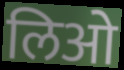
लिओ